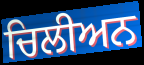
ਚਿਲੀਅਨ